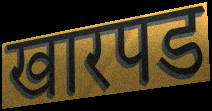
खारपड